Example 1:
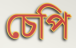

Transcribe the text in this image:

চেপি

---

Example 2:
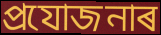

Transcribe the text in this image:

প্ৰযোজনাৰ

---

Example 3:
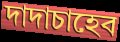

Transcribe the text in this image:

দাদাচাহেব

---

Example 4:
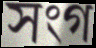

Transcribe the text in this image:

সংগ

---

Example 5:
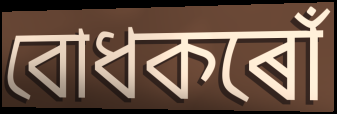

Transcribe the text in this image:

বোধকৰোঁ